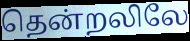
தென்றலிலே